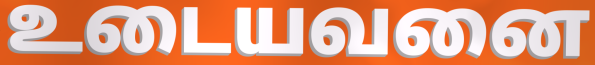
உடையவனை